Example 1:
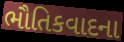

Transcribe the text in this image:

ભૌતિકવાદના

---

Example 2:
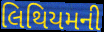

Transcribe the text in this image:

લિથિયમની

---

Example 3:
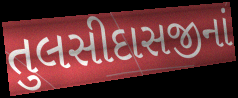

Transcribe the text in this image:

તુલસીદાસજીનાં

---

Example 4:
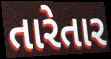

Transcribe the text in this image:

તારેતાર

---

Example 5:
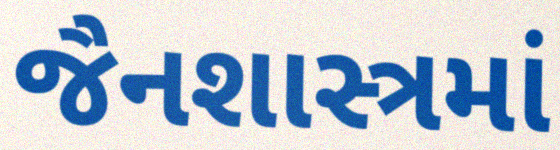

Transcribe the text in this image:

જૈનશાસ્ત્રમાં